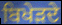
ਬਿਖੇੜਦੇ